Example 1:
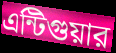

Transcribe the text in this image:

এন্টিগুয়ার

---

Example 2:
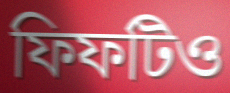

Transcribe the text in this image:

ফিফটিও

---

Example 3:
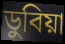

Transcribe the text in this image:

ডুবিয়া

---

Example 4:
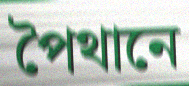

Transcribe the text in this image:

পৈথানে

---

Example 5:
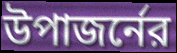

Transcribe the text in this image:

উপাজর্নের